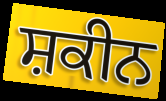
ਸ਼ਕੀਨ